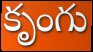
కృంగు